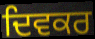
ਦਿਵਕਰ